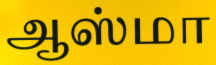
ஆஸ்மா